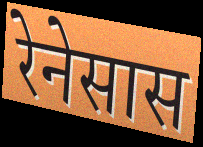
रेनेसास